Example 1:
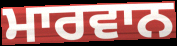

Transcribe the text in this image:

ਮਾਰਵਾਨ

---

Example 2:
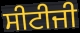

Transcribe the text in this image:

ਸੀਟੀਜੀ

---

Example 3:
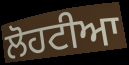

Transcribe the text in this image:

ਲੋਹਟੀਆ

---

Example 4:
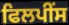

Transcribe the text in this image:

ਫਿਲਪੀਂਸ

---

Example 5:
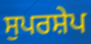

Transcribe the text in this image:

ਸੁਪਰਸ਼ੇਪ